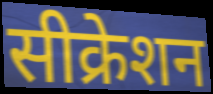
सीक्रेशन